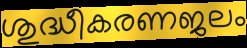
ശുദ്ധീകരണജലം